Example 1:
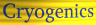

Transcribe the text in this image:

Cryogenics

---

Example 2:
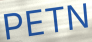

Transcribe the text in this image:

PETN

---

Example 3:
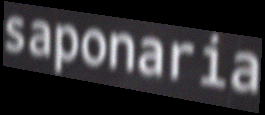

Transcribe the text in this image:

saponaria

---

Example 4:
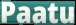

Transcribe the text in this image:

Paatu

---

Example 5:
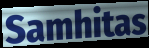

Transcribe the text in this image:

Samhitas